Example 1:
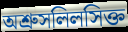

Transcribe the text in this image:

অশ্রুসলিলসিক্ত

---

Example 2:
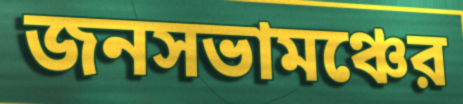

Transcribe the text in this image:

জনসভামঞ্চের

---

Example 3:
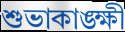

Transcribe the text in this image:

শুভাকাঙ্ক্ষী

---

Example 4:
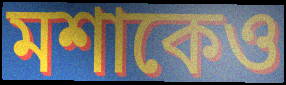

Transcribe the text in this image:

মশাকেও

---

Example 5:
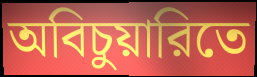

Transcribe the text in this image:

অবিচুয়ারিতে